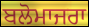
ਬਲੋਮਾਜਰਾ